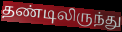
தண்டிலிருந்து